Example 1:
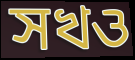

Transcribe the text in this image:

সখও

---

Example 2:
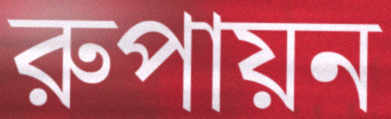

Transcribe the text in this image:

রুপায়ন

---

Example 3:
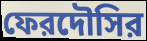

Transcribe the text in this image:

ফেরদৌসির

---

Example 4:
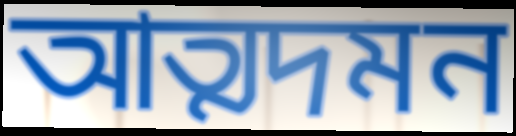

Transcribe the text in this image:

আত্মদমন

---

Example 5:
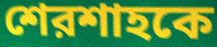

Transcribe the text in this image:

শেরশাহকে